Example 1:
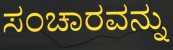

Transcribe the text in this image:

ಸಂಚಾರವನ್ನು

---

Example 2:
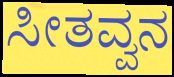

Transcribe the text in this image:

ಸೀತವ್ವನ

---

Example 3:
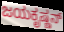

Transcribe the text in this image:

ಜಯಕೃಷ್ಣನ್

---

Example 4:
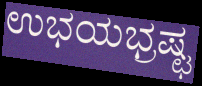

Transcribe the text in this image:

ಉಭಯಭ್ರಷ್ಟ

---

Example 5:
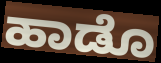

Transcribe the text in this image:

ಹಾಡೊ